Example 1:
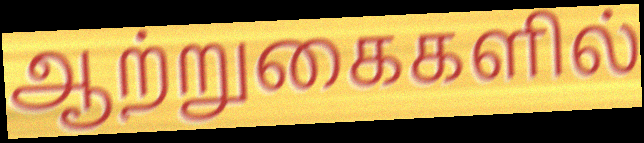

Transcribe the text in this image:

ஆற்றுகைகளில்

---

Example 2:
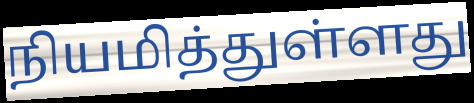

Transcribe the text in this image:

நியமித்துள்ளது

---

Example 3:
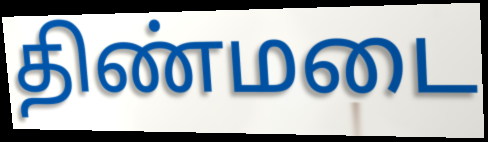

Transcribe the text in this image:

திண்மடை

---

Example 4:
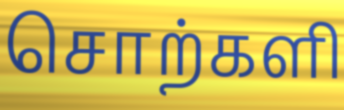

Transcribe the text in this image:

சொற்களி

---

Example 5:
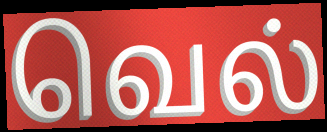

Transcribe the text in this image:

வெல்